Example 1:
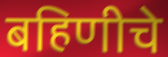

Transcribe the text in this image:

बहिणीचे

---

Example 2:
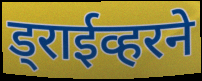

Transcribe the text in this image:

ड्राईव्हरने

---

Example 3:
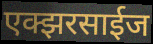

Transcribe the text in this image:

एक्झरसाईज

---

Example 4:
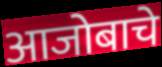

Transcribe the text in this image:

आजोबाचे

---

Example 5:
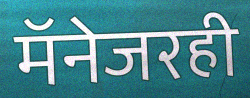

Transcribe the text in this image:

मॅनेजरही